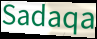
Sadaqa